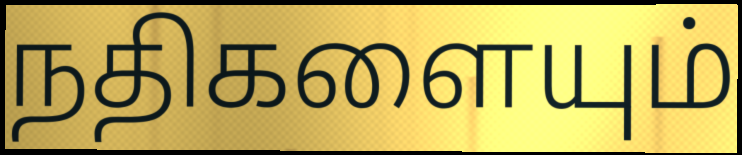
நதிகளையும்